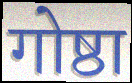
गोष्ठा